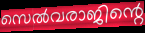
സെൽവരാജിന്റെ